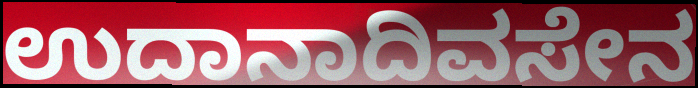
ಉದಾನಾದಿವಸೇನ